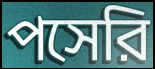
পসেরি